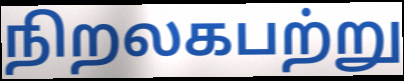
நிறலகபற்று